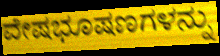
ವೇಷಭೂಷಣಗಳನ್ನು